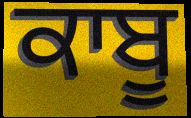
ਕਾਬੂ